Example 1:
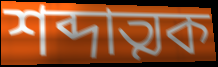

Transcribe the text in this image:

শব্দাত্মক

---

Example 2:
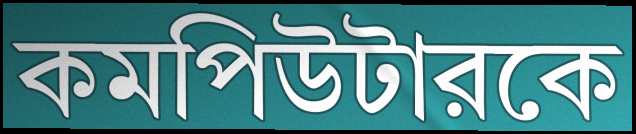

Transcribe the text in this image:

কমপিউটারকে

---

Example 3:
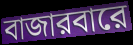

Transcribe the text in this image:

বাজারবারে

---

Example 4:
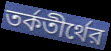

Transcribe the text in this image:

তর্কতীর্থের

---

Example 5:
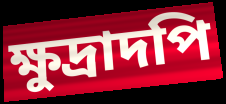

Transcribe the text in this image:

ক্ষুদ্রাদপি